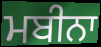
ਮਬੀਨਾ